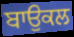
ਬਾਉਕਲ